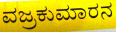
ವಜ್ರಕುಮಾರನ